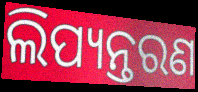
ଲିପ୍ୟନ୍ତରଣ